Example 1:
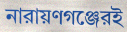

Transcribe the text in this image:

নারায়ণগঞ্জেরই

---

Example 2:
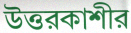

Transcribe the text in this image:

উত্তরকাশীর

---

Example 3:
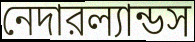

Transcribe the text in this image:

নেদারল্যান্ডস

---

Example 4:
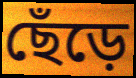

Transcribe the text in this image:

ছেঁড়ে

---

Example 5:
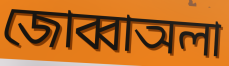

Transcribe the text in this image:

জোব্বাঅলা